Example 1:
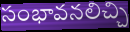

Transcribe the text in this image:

సంభావనలిచ్చి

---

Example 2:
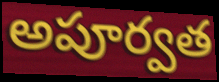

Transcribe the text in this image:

అపూర్వత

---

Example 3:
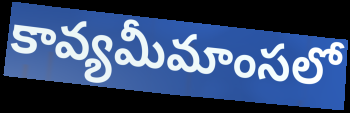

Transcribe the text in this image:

కావ్యమీమాంసలో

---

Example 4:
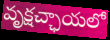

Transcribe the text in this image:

వృక్షచ్ఛాయలో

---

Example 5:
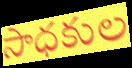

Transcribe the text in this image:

సాధకుల